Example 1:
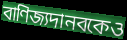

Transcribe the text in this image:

বাণিজ্যদানবকেও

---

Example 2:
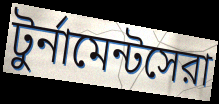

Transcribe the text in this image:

টুর্নামেন্টসেরা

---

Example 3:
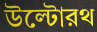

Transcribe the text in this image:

উল্টোরথ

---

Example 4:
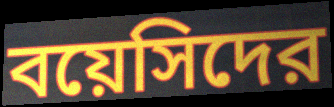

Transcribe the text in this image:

বয়েসিদের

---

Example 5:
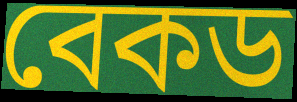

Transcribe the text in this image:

বেকড